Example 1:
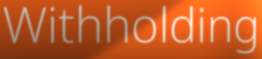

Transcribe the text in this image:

Withholding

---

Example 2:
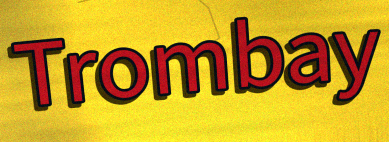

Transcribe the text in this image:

Trombay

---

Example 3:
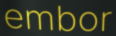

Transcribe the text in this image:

embor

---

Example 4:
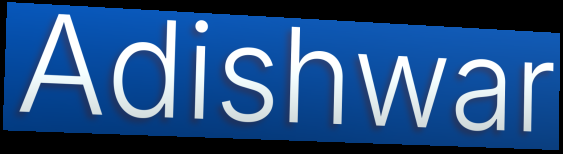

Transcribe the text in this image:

Adishwar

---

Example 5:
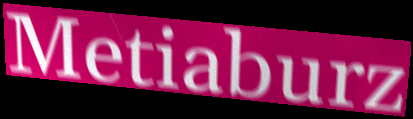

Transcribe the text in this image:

Metiaburz